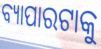
ବ୍ୟାପାରଟାକୁ